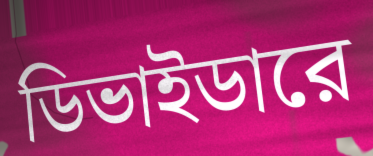
ডিভাইডারে